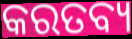
କରତବ୍ୟ